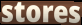
stores